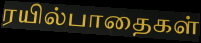
ரயில்பாதைகள்